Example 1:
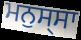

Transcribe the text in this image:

ਮਨੁਸ੍ਸਾ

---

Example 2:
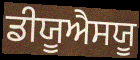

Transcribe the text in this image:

ਡੀਯੂਐਸਯੂ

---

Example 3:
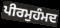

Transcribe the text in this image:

ਪੀਰਮੁਹੰਮਦ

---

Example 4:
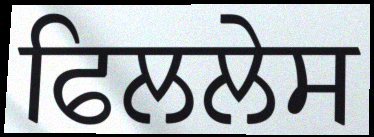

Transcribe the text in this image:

ਫਿਲਲੇਸ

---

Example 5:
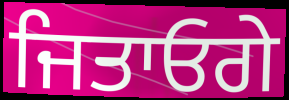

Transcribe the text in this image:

ਜਿਤਾਓਗੇ